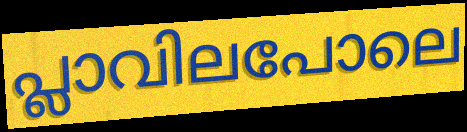
പ്ലാവിലപോലെ